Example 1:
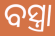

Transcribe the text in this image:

ବସ୍ତ୍ରା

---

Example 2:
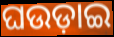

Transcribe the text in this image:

ଘଉଡ଼ାଇ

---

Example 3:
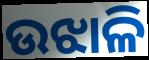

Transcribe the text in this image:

ଉଝାଳି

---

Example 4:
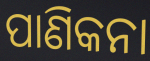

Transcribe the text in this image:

ପାଣିକନା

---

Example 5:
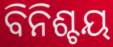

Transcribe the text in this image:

ବିନିଶ୍ଚୟ